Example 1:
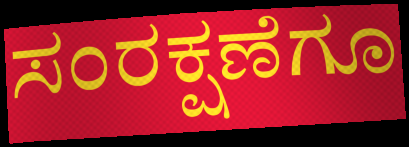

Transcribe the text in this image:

ಸಂರಕ್ಷಣೆಗೂ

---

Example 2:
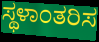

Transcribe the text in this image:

ಸ್ಥಳಾಂತರಿಸ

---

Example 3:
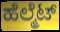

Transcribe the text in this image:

ಹೆಲ್ಮೆಟ್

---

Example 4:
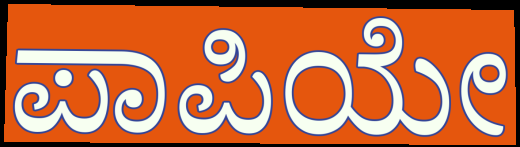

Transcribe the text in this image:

ಪಾಪಿಯೇ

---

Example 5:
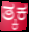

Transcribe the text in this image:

ತ್ಕಕ